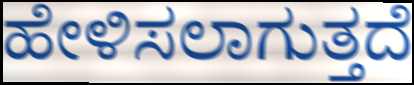
ಹೇಳಿಸಲಾಗುತ್ತದೆ